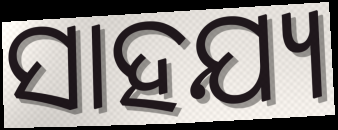
ସାହଯ୍ୟ